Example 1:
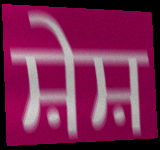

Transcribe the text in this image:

ਸ਼ੇਸ਼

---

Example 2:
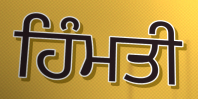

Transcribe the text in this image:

ਹਿੰਮਤੀ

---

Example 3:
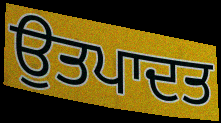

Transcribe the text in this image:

ਉਤਪਾਦਤ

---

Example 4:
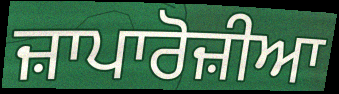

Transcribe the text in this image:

ਜ਼ਾਪਾਰੋਜ਼ੀਆ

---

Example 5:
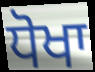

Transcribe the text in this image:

ਧੋਖਾ